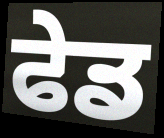
ਫੇਡ